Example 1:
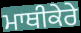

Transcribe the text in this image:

ਮਾਥੀਕੇਰੇ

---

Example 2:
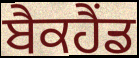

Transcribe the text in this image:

ਬੈਕਹੈਂਡ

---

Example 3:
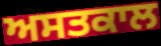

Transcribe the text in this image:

ਅਸਤਕਾਲ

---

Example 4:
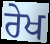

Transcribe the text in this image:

ਰੇਖ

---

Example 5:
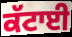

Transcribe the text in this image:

ਕੱਟਾਈ